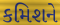
કમિશને